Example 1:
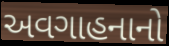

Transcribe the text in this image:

અવગાહનાનો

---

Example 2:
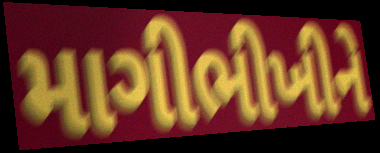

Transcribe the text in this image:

માગીભીખીને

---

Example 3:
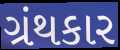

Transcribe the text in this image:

ગ્રંથકાર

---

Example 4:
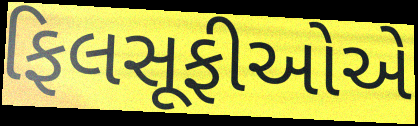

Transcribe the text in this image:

ફિલસૂફીઓએ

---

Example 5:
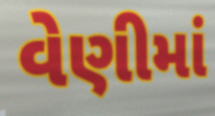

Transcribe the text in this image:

વેણીમાં